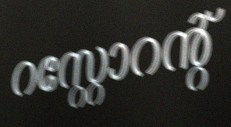
റസ്റ്റോറന്റ്